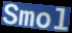
Smol